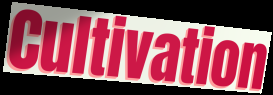
Cultivation